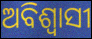
ଅବିଶ୍ଵାସୀ